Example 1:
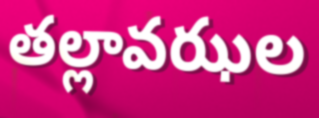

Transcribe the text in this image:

తల్లావఝల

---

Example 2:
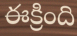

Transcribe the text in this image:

ఈక్రింది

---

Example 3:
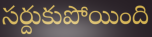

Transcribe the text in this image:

సర్దుకుపోయింది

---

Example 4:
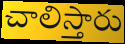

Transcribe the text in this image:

చాలిస్తారు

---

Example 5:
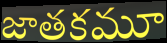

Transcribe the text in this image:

జాతకమూ